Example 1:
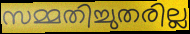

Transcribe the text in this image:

സമ്മതിച്ചുതരില്ല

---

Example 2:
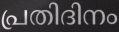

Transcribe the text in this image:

പ്രതിദിനം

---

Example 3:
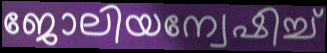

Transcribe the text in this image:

ജോലിയന്വേഷിച്ച്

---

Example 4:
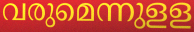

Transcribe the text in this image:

വരുമെന്നുളള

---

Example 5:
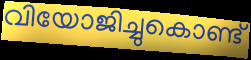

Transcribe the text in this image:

വിയോജിച്ചുകൊണ്ട്